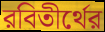
রবিতীর্থের